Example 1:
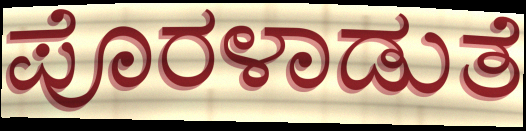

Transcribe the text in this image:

ಪೊರಳಾಡುತೆ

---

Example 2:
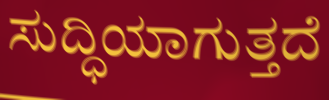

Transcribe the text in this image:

ಸುದ್ಧಿಯಾಗುತ್ತದೆ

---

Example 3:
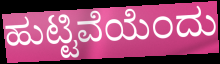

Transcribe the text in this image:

ಹುಟ್ಟಿವೆಯೆಂದು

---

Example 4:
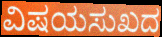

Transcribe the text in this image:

ವಿಷಯಸುಖದ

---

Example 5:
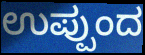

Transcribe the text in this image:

ಉಪ್ಪುಂದ